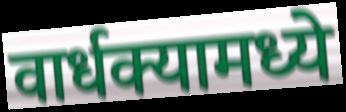
वार्धक्यामध्ये